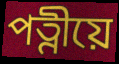
পত্নীয়ে